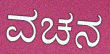
ವಚನ